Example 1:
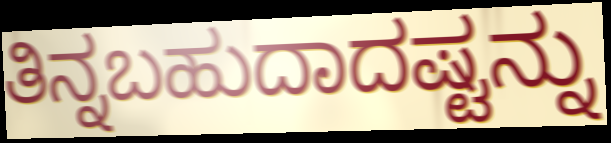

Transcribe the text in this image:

ತಿನ್ನಬಹುದಾದಷ್ಟನ್ನು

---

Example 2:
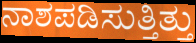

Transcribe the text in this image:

ನಾಶಪಡಿಸುತ್ತಿತ್ತು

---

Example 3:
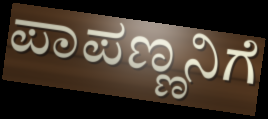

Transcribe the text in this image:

ಪಾಪಣ್ಣನಿಗೆ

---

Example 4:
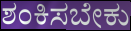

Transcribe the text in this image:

ಶಂಕಿಸಬೇಕು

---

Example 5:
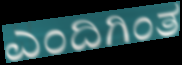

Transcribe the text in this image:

ಎಂದಿಗಿಂತ